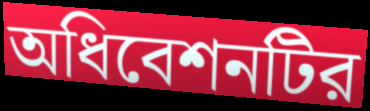
অধিবেশনটির